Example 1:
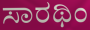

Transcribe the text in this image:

ಸಾರಥಿಂ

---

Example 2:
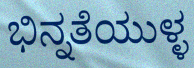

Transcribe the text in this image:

ಭಿನ್ನತೆಯುಳ್ಳ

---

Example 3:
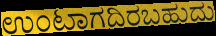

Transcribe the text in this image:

ಉಂಟಾಗದಿರಬಹುದು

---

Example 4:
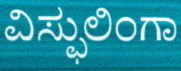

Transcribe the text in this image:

ವಿಸ್ಫುಲಿಂಗಾ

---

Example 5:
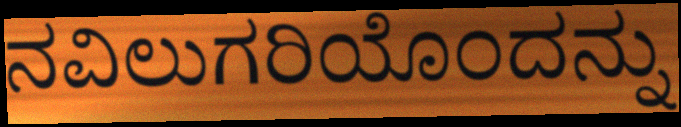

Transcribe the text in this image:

ನವಿಲುಗರಿಯೊಂದನ್ನು